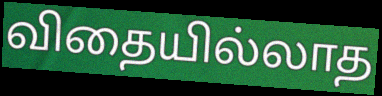
விதையில்லாத